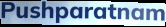
Pushparatnam